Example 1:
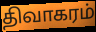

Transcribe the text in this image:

திவாகரம்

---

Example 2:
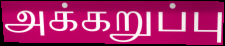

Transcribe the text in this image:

அக்கறுப்பு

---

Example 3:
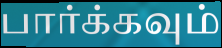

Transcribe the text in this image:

பார்க்கவும்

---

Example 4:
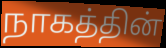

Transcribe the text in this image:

நாகத்தின்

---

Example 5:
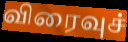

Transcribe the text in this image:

விரைவுச்